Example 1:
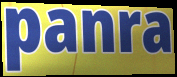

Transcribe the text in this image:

panra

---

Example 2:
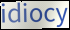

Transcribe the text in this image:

idiocy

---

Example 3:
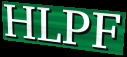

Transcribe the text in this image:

HLPF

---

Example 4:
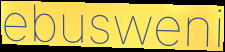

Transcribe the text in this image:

ebusweni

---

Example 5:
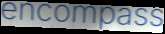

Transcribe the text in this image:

encompass